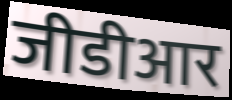
जीडीआर